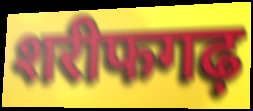
शरीफगढ़